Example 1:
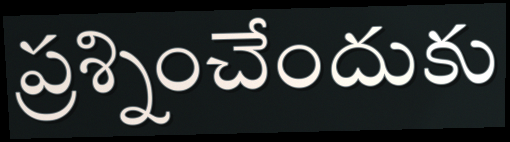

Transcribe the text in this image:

ప్రశ్నించేందుకు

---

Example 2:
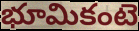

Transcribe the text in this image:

భూమికంటె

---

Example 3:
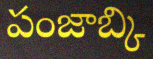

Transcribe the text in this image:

పంజాబ్కి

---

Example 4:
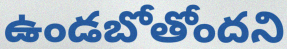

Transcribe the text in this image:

ఉండబోతోందని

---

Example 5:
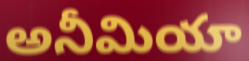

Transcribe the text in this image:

అనీమియా